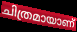
ചിത്രമായാണ്